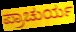
ಪ್ರಾಚುರ್ಯ